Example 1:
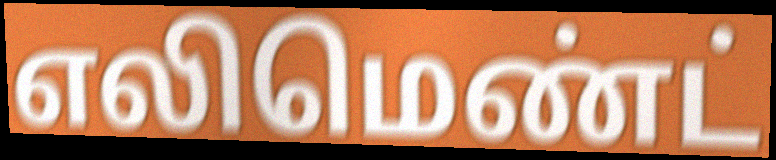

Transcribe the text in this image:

எலிமெண்ட்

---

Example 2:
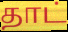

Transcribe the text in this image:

தாட்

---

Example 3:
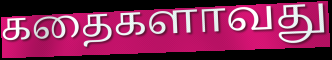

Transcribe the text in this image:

கதைகளாவது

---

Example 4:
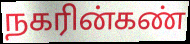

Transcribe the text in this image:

நகரின்கண்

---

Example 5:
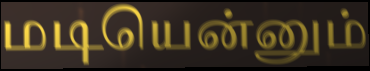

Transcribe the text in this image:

மடியென்னும்